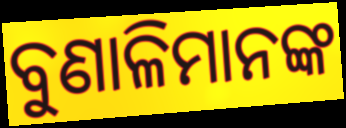
ବୁଣାଳିମାନଙ୍କ